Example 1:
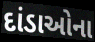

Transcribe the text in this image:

દાંડાઓના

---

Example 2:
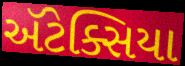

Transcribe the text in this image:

ઍટેક્સિયા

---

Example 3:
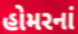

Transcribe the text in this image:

હોમરનાં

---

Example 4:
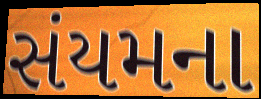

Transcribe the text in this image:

સંયમના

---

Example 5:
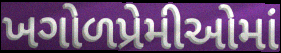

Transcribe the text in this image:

ખગોળપ્રેમીઓમાં